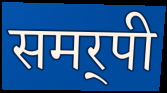
समर्पी